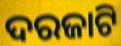
ଦରଜାଟି